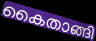
കൈതാങ്ങി